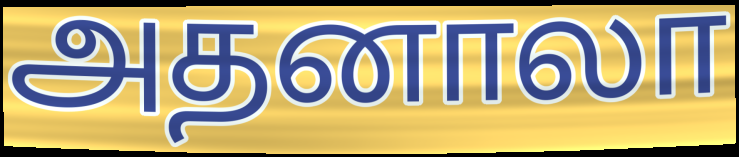
அதனாலா